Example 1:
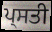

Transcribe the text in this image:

ਪ੍ਸਤੀ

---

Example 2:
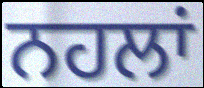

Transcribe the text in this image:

ਨਹਲਾਂ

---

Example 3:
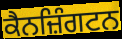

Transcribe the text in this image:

ਕੈਨਜ਼ਿੰਗਟਨ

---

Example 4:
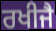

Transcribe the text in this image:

ਰਖੀਜੈ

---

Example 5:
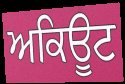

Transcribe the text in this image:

ਅਕਿਊਟ